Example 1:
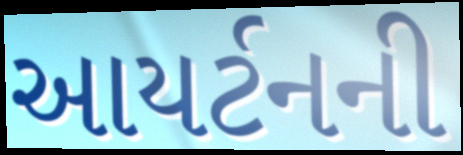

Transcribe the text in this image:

આયર્ટનની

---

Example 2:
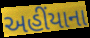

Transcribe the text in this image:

અહીંયાના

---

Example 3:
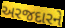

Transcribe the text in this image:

અરજદારને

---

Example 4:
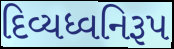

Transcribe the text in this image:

દિવ્યધ્વનિરૂપ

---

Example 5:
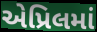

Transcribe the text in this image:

એપ્રિલમાં